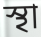
স্থা